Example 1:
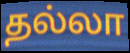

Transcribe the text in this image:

தல்லா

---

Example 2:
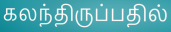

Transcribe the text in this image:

கலந்திருப்பதில்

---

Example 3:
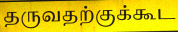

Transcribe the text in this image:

தருவதற்குக்கூட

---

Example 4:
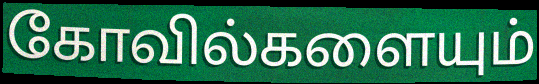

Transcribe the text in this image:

கோவில்களையும்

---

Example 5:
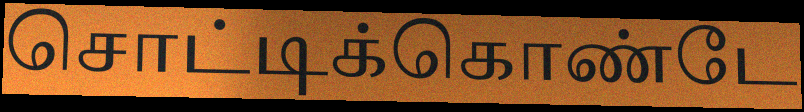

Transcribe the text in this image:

சொட்டிக்கொண்டே